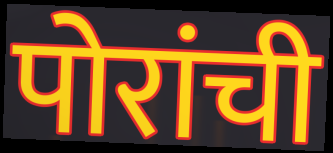
पोरांची